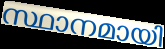
സ്ഥാനമായി